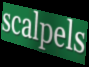
scalpels